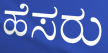
ಹೆಸರು